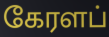
கேரளப்